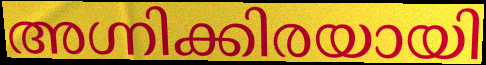
അഗ്നിക്കിരയായി